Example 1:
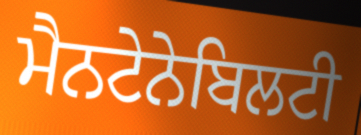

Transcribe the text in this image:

ਮੈਨਟੇਨੇਬਿਲਟੀ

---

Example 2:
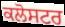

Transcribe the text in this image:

ਕਲੋਸਟਰ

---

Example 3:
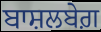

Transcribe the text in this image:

ਬਾਸ਼ਲਬੇਗ਼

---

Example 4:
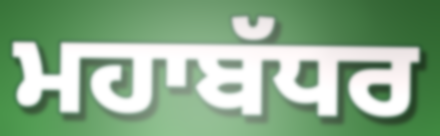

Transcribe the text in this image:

ਮਹਾਬੱਧਰ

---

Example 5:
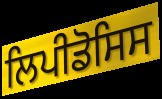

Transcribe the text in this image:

ਲਿਪੀਡੋਸਿਸ